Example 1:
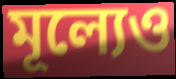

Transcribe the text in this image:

মূল্যেও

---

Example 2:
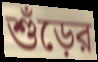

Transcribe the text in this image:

শুঁড়ের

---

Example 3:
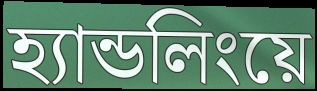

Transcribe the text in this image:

হ্যান্ডলিংয়ে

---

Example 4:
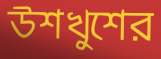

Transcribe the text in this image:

উশখুশের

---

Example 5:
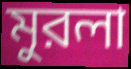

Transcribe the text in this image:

মুরলা